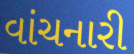
વાંચનારી